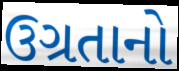
ઉગ્રતાનો